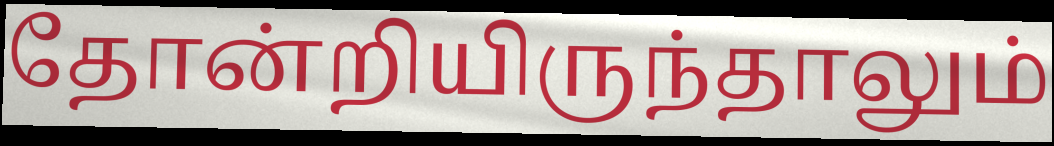
தோன்றியிருந்தாலும்